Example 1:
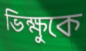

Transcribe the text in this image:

ভিক্ষুকে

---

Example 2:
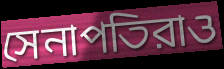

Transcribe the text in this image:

সেনাপতিরাও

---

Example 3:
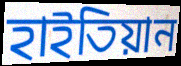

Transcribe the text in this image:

হাইতিয়ান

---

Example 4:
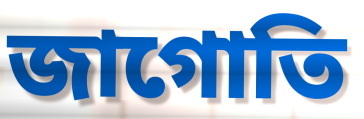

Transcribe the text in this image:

জাগোতি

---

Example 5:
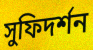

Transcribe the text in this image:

সুফিদর্শন